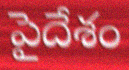
పైదేశం